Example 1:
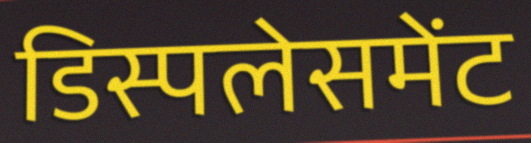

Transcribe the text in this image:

डिस्पलेसमेंट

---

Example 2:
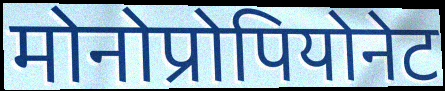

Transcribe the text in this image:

मोनोप्रोपियोनेट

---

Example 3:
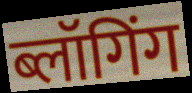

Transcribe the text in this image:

ब्लॉगिंग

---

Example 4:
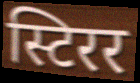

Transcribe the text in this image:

स्टिरर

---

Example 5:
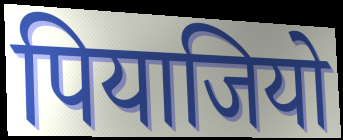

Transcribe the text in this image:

पियाजियो